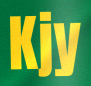
Kjy